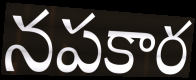
నపకార